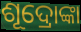
ଶୂଦ୍ରୋଙ୍କା